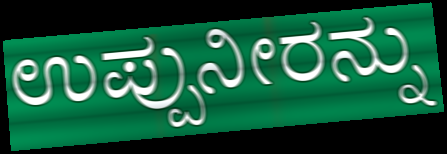
ಉಪ್ಪುನೀರನ್ನು